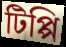
টিপ্পি